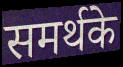
समर्थके